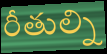
రీతుల్ని